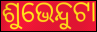
ଶୁଭେନ୍ଦୁଟା